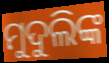
ମୁଦୁଲିଙ୍କ